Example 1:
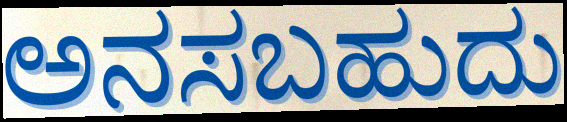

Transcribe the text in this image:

ಅನಸಬಹುದು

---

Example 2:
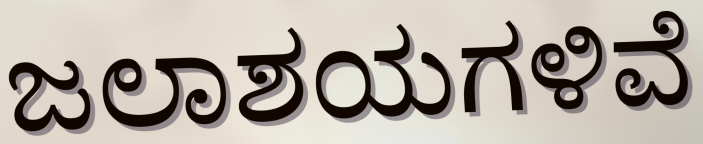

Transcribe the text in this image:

ಜಲಾಶಯಗಳಿವೆ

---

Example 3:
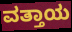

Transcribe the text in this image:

ವತ್ತಾಯ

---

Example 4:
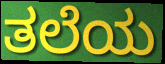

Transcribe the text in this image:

ತಲೆಯ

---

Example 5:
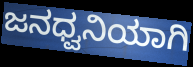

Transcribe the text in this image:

ಜನಧ್ವನಿಯಾಗಿ